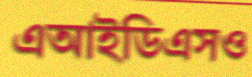
এআইডিএসও